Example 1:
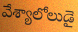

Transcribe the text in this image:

వేశ్యాలోలుడై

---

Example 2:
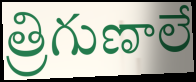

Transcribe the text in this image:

త్రిగుణాలే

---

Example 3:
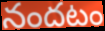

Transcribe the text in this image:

నందటం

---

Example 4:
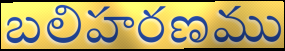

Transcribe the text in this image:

బలిహరణము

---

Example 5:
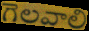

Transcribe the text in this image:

గెలవాలి